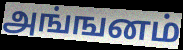
அங்ஙனம்